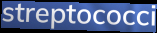
streptococci